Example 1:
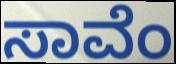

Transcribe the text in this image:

ಸಾವೆಂ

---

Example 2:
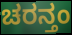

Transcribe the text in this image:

ಚರನ್ತಂ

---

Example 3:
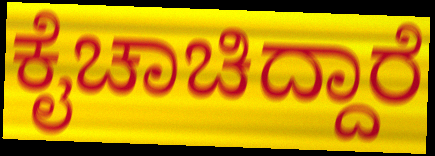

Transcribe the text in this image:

ಕೈಚಾಚಿದ್ದಾರೆ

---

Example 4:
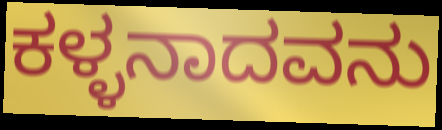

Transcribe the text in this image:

ಕಳ್ಳನಾದವನು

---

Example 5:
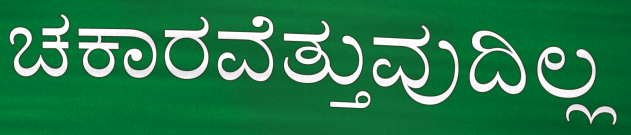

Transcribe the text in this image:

ಚಕಾರವೆತ್ತುವುದಿಲ್ಲ